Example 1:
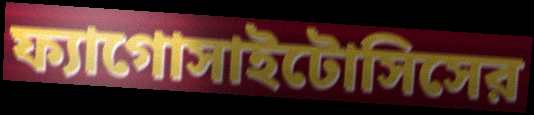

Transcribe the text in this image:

ফ্যাগোসাইটোসিসের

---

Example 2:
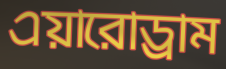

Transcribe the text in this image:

এয়ারোড্রাম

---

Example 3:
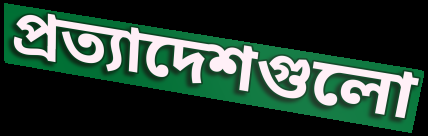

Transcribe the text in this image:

প্রত্যাদেশগুলো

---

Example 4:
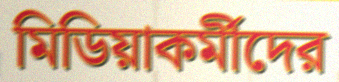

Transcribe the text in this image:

মিডিয়াকর্মীদের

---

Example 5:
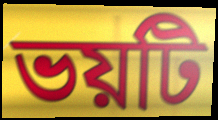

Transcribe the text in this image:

ভয়টি